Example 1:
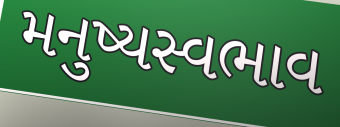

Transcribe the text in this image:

મનુષ્યસ્વભાવ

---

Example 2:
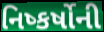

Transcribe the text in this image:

નિષ્કર્ષોની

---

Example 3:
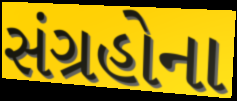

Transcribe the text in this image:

સંગ્રહોના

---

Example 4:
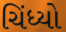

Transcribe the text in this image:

ચિંધ્યો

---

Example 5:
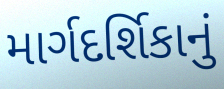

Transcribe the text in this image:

માર્ગદર્શિકાનું